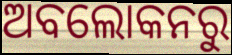
ଅବଲୋକନରୁ